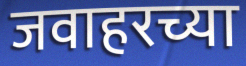
जवाहरच्या